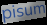
pisum